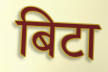
बिटा